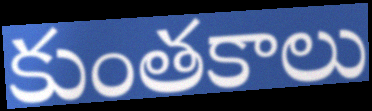
కుంతకాలు